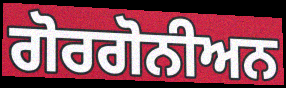
ਗੋਰਗੋਨੀਅਨ